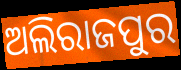
ଅଲିରାଜପୁର